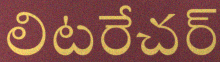
లిటరేచర్